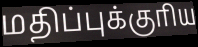
மதிப்புக்குரிய